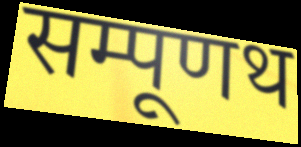
सम्पूणथ